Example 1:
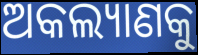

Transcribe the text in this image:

ଅକଲ୍ୟାଣକୁ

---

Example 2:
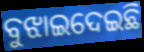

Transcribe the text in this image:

ବୁଝାଇଦେଇଛି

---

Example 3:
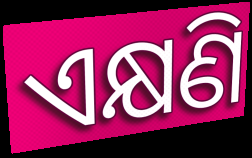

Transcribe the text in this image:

ଏକ୍ଷଣି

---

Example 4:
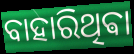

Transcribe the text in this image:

ବାହାରିଥିଵା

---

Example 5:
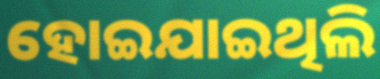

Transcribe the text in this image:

ହୋଇଯାଇଥିଲି